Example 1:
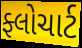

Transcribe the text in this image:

ફ્લોચાર્ટ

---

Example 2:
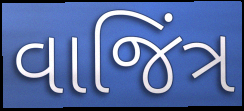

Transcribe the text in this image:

વાજિંત્ર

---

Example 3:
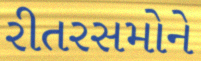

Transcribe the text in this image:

રીતરસમોને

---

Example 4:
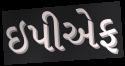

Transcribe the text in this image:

ઇપીએફ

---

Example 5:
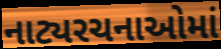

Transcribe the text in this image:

નાટ્યરચનાઓમાં